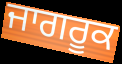
ਜਾਗਰੂਕ